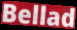
Bellad